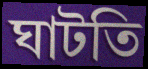
ঘাটতি